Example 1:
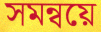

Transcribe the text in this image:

সমন্বয়ে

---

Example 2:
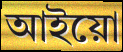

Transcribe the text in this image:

আইয়ো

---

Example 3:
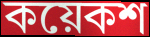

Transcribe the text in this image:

কয়েকশ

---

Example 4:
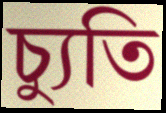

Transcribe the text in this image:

চ্যুতি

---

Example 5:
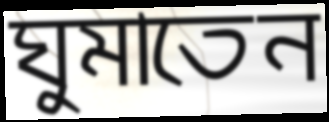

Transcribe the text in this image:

ঘুমাতেন